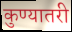
कुण्यातरी